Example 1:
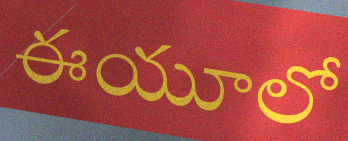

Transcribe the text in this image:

ఈయూలో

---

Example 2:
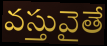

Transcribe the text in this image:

వస్తువైతే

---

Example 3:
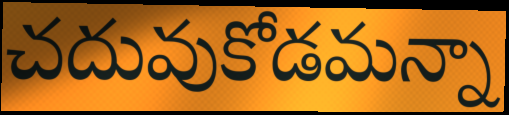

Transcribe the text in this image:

చదువుకోడమన్నా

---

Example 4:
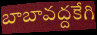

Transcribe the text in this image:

బాబావద్దకేగి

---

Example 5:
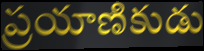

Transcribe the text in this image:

ప్రయాణికుడు